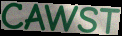
CAWST